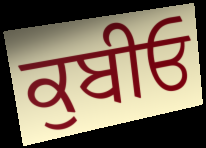
ਕੁਬੀਓ